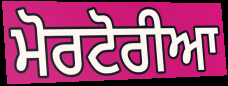
ਮੋਰਟੋਰੀਆ